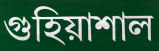
গুহিয়াশাল